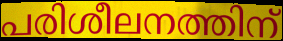
പരിശീലനത്തിന്